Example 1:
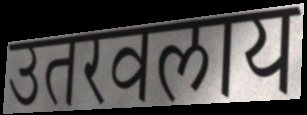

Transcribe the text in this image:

उतरवलाय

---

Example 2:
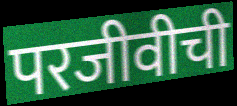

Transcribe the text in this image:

परजीवीची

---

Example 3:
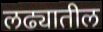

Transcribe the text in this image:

लढ्यातील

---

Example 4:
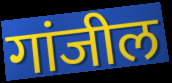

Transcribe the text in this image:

गांजील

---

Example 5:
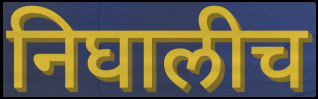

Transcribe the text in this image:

निघालीच